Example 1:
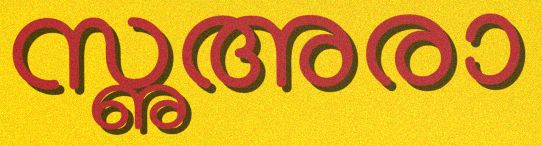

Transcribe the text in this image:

സൢഅരാ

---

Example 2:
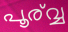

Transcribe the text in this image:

പൂര്വ്വ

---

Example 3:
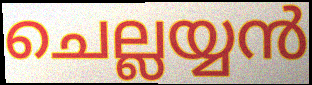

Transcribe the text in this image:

ചെല്ലയ്യൻ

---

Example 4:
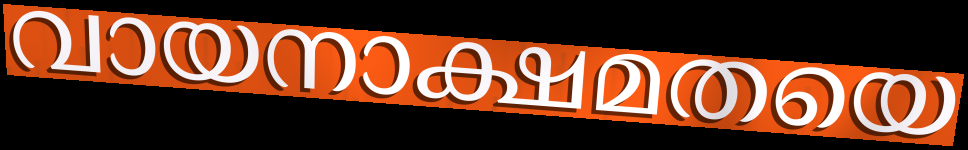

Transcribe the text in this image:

വായനാക്ഷമതയെ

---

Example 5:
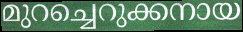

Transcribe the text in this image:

മുറച്ചെറുക്കനായ